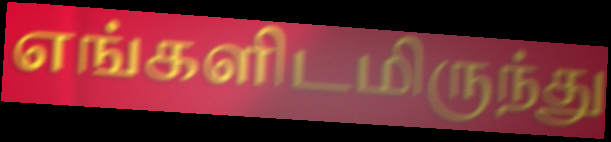
எங்களிடமிருந்து